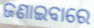
ଜଣାଇବାରେ